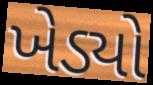
ખેડ્યો